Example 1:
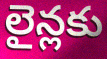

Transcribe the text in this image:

లైన్లకు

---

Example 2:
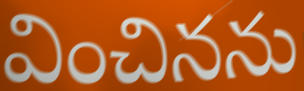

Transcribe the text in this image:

వించినను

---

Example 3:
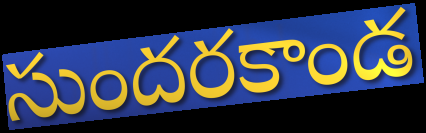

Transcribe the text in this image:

సుందరకాండ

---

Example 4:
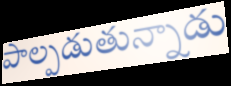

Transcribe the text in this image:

పాల్పడుతున్నాడు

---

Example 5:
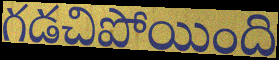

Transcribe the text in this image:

గడచిపోయింది